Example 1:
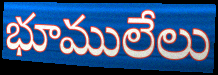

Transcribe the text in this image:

భూములేలు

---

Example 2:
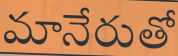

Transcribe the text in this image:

మానేరుతో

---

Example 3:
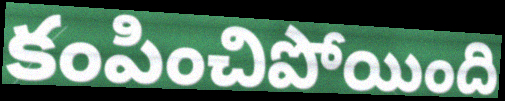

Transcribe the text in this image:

కంపించిపోయింది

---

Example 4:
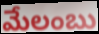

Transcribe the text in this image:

మేలంబు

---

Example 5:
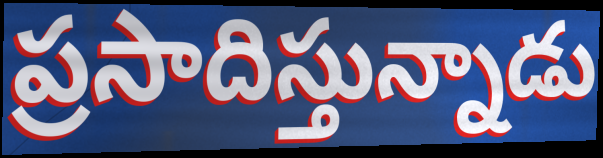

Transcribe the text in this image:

ప్రసాదిస్తున్నాడు